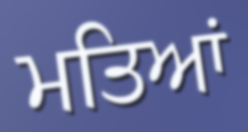
ਮਤਿਆਂ